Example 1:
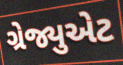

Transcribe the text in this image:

ગ્રેજ્યુએટ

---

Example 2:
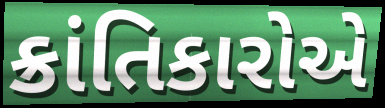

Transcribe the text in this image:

ક્રાંતિકારોએ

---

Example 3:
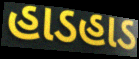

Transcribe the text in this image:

હાડહાડ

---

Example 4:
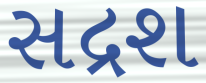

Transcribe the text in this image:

સદ્રશ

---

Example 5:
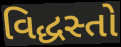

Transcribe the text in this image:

વિદ્ધસ્તો